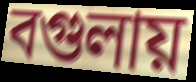
বগুলায়